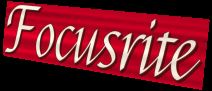
Focusrite